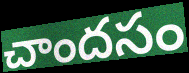
చాందసం